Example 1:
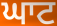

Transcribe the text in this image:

ਘਾਟ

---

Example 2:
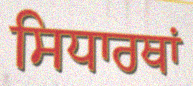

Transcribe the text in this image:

ਸਿਧਾਰਥਾਂ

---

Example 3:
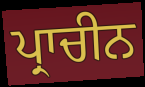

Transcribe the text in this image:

ਪ੍ਰਾਚੀਨ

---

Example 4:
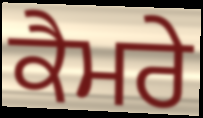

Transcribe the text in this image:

ਕੈਮਰੇ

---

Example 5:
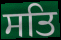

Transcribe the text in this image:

ਸਤਿ